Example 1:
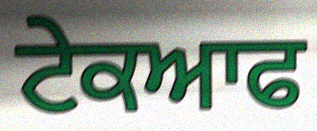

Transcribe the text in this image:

ਟੇਕਆਫ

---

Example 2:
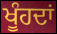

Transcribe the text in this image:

ਖੂੰਹਦਾਂ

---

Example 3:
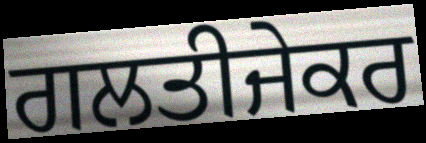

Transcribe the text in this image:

ਗਲਤੀਜੇਕਰ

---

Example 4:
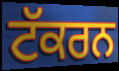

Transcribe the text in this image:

ਟੱਕਰਨ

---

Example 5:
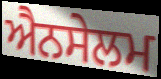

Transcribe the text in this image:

ਐਨਸੇਲਮ